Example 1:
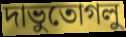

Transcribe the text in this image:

দাভুতোগলু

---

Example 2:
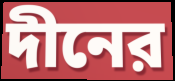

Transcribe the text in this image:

দীনের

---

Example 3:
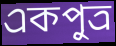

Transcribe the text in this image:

একপুত্র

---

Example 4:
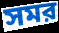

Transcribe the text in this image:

সমর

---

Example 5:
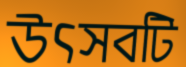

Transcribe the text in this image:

উৎসবটি